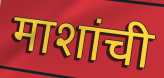
माशांची